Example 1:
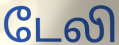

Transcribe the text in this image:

டேலி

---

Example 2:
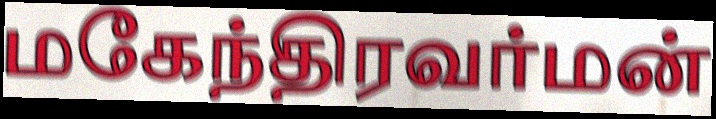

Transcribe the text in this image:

மகேந்திரவர்மன்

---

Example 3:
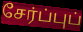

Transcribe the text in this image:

சேர்ப்புப்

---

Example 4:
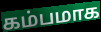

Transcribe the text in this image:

கம்பமாக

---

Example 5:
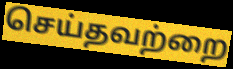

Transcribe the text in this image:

செய்தவற்றை